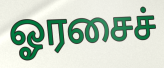
ஓரசைச்